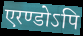
एरण्डोऽपि